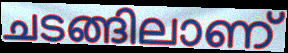
ചടങ്ങിലാണ്